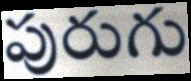
పురుగు